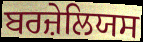
ਬਰਜ਼ੇਲਿਯਸ